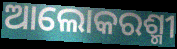
ଆଲୋକରଶ୍ମୀ